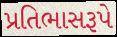
પ્રતિભાસરૂપે